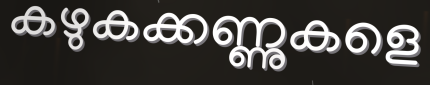
കഴുകക്കണ്ണുകളെ